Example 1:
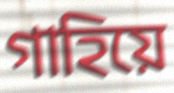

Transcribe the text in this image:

গাহিয়ে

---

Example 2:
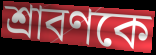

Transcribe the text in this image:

শ্রাবণকে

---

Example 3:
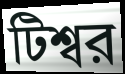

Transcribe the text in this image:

টিশ্বর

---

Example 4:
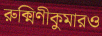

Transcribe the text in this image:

রুক্মিণীকুমারও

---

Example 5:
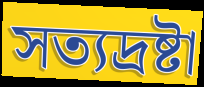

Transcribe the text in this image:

সত্যদ্রষ্টা